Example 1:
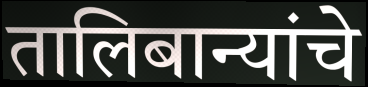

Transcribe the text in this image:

तालिबान्यांचे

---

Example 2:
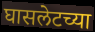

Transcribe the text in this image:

घासलेटच्या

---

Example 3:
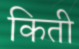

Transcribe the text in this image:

किती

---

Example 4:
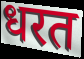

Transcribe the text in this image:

धरत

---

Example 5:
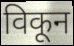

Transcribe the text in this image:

विकून